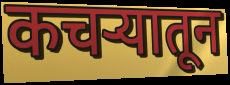
कचर्‍यातून